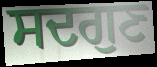
ਸਦਗੁਣ